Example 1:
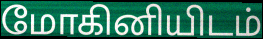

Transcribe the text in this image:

மோகினியிடம்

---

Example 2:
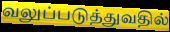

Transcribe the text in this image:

வலுப்படுத்துவதில்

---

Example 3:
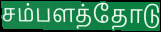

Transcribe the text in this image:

சம்பளத்தோடு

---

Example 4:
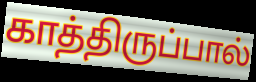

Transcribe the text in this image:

காத்திருப்பால்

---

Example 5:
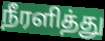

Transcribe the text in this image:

நீரளித்து